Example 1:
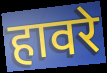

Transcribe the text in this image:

हावरे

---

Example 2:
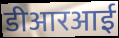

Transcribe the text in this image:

डीआरआई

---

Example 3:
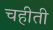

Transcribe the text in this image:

चहीती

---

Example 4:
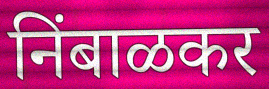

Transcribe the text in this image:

निंबाळकर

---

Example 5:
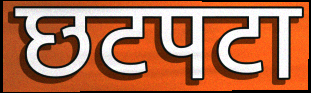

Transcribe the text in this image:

छटपटा